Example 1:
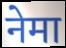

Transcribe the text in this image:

नेमा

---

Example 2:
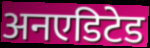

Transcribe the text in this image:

अनएडिटेड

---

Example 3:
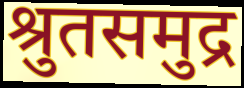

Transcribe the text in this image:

श्रुतसमुद्र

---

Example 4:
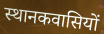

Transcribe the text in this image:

स्थानकवासियों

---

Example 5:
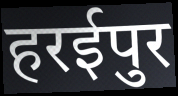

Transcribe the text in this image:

हरईपुर